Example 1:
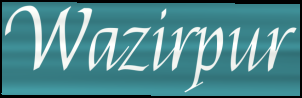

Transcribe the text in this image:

Wazirpur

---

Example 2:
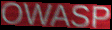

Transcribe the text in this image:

OWASP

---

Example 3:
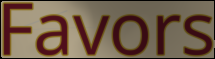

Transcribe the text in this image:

Favors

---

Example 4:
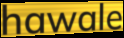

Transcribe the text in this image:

hawale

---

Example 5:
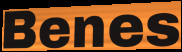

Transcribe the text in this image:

Benes